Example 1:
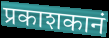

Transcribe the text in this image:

प्रकाशकानं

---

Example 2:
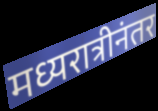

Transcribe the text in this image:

मध्यरात्रीनंतर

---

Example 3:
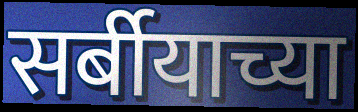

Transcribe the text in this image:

सर्बीयाच्या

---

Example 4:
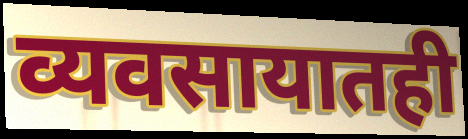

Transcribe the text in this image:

व्यवसायातही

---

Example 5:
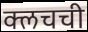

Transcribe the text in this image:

क्लचची